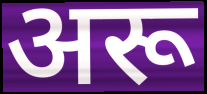
अरू